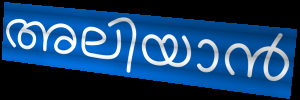
അലിയാൻ